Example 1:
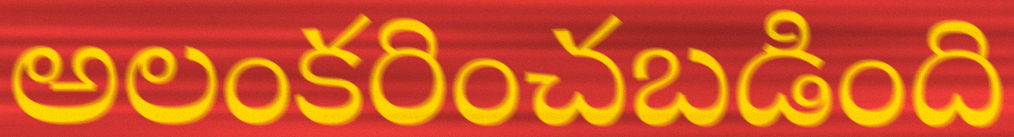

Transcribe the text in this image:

అలంకరించబడింది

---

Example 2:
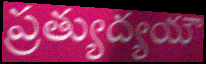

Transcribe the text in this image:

ప్రత్యుద్యయౌ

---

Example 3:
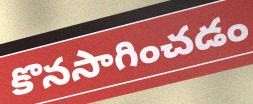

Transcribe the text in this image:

కొనసాగించడం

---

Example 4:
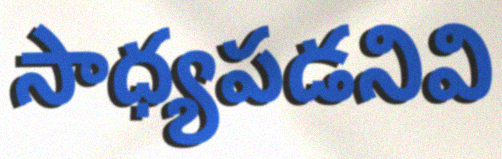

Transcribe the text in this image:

సాధ్యపడనివి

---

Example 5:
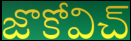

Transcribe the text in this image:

జొకోవిచ్